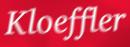
Kloeffler